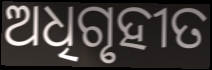
ଅଧିଗୃହୀତ